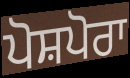
ਪੋਸ਼ਪੋਰਾ